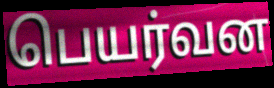
பெயர்வன